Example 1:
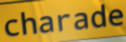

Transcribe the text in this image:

charade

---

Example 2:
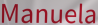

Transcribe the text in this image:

Manuela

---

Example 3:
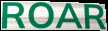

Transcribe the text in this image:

ROAR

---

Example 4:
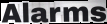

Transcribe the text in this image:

Alarms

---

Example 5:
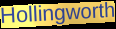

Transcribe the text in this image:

Hollingworth